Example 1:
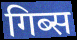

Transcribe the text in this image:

गिब्स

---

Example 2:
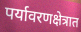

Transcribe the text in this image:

पर्यावरणक्षेत्रात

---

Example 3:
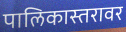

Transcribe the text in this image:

पालिकास्तरावर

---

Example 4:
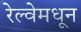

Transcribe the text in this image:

रेल्वेमधून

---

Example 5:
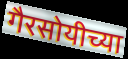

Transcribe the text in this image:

गैरसोयीच्या